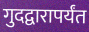
गुदद्वारापर्यंत